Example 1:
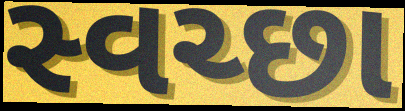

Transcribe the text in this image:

સ્વચ્છા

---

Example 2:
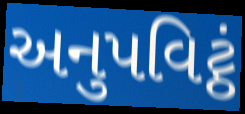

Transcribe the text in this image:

અનુપવિટ્ઠં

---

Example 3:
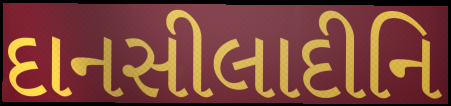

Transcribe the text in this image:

દાનસીલાદીનિ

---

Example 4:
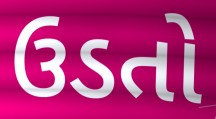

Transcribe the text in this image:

ઉડતો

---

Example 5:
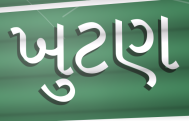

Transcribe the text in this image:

ખુટણ